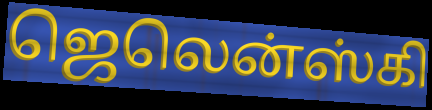
ஜெலென்ஸ்கி